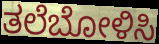
ತಲೆಬೋಳಿಸಿ